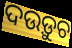
ଦଉଡ଼ୁଚ